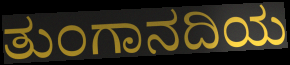
ತುಂಗಾನದಿಯ